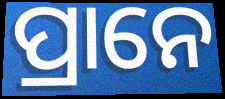
ପ୍ରାନେ